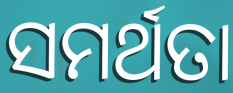
ସମର୍ଥତା